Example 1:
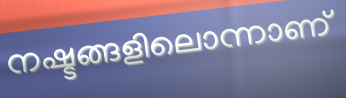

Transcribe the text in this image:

നഷ്ടങ്ങളിലൊന്നാണ്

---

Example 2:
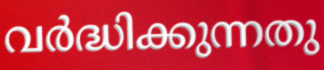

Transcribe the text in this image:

വർദ്ധിക്കുന്നതു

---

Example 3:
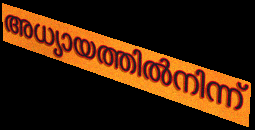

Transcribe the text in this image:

അധ്യായത്തിൽനിന്ന്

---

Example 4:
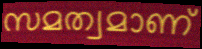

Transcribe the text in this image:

സമത്വമാണ്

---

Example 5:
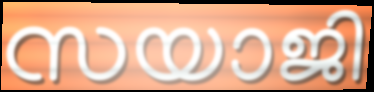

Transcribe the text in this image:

സയാജി